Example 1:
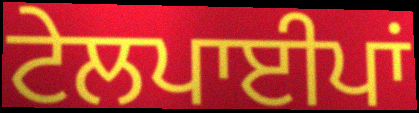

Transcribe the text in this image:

ਟੇਲਪਾਈਪਾਂ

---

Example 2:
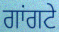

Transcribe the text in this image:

ਗਾਂਗਟੇ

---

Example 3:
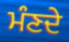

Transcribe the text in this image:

ਮੰਣਦੇ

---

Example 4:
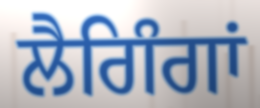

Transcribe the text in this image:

ਲੈਗਿੰਗਾਂ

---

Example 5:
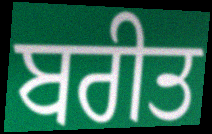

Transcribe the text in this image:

ਬਰੀਤ